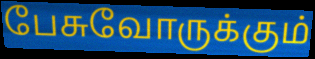
பேசுவோருக்கும்